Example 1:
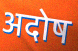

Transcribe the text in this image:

अदोष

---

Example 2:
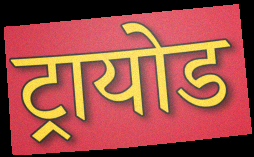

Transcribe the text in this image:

ट्रायोड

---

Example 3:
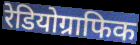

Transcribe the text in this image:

रेडियोग्राफिक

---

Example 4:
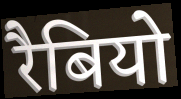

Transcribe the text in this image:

रैबियो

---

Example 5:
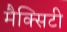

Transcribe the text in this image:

मैक्सिटी